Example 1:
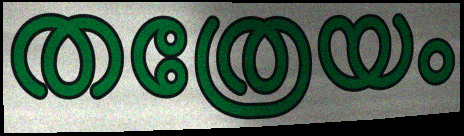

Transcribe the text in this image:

തത്രേയം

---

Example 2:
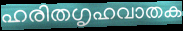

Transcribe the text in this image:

ഹരിതഗൃഹവാതക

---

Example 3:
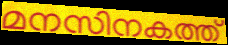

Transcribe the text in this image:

മനസിനകത്ത്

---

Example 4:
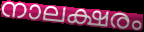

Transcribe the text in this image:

നാലക്ഷരം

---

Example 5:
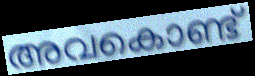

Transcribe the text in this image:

അവകൊണ്ട്